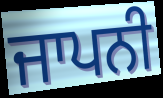
ਜਾਪਨੀ